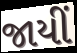
જાયીં